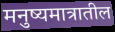
मनुष्यमात्रातील